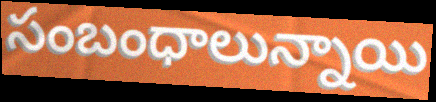
సంబంధాలున్నాయి